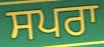
ਸਪਰਾ